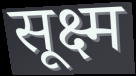
सूक्ष्म